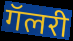
गॅलरी